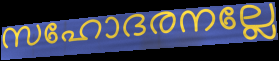
സഹോദരനല്ലേ